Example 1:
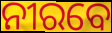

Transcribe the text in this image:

ନୀରବେ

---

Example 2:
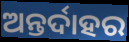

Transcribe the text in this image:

ଅନ୍ତର୍ଦାହର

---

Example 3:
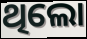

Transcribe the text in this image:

ଥିଲୋ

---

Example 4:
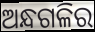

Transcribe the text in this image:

ଅନ୍ଧଗଳିର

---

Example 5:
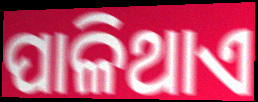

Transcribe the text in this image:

ପାଳିଥାଏ